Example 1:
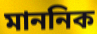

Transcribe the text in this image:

মাননিক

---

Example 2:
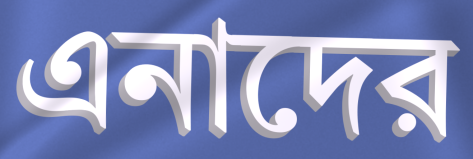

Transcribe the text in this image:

এনাদের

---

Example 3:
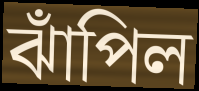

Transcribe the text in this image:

ঝাঁপিল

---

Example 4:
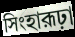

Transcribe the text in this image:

সিংহারূঢ়া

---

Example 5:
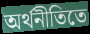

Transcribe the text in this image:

অর্থনীতিতে